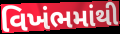
વિખંભમાંથી